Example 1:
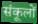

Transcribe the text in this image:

संकूलों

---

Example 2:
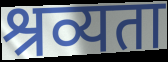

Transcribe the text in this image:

श्रव्यता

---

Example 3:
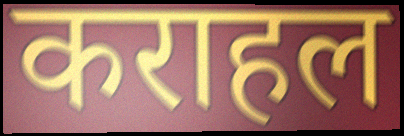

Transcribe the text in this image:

कराहल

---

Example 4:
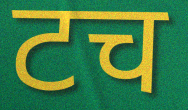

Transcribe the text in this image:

टच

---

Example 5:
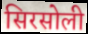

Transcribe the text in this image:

सिरसोली